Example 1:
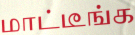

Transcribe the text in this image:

மாட்டீங்க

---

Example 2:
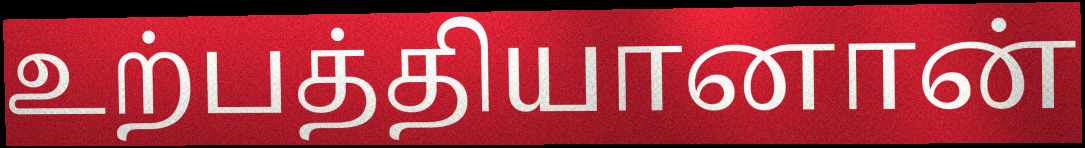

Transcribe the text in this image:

உற்பத்தியானான்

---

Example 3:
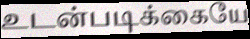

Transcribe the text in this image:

உடன்படிக்கையே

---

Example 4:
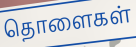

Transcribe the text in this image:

தொளைகள்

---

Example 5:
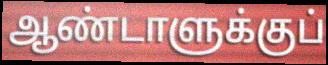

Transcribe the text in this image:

ஆண்டாளுக்குப்